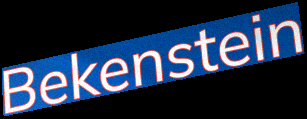
Bekenstein